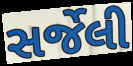
સર્જેલી